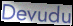
Devudu